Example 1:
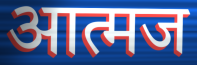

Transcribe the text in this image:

आत्मज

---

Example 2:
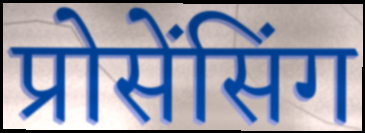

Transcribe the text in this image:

प्रोसेंसिंग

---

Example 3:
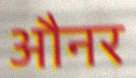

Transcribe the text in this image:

औनर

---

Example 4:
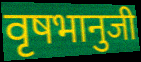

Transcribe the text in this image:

वृषभानुजी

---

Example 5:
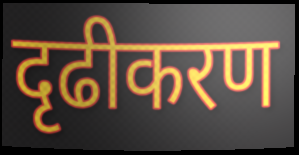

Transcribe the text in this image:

दृढीकरण